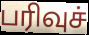
பரிவுச்